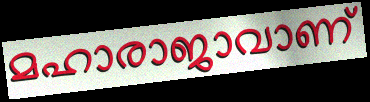
മഹാരാജാവാണ്